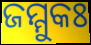
ଜମ୍ମୁକଃ